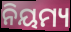
ନିୟମ୍ୟ